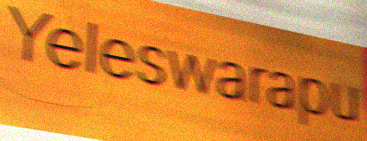
Yeleswarapu